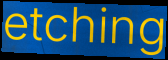
etching